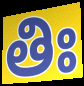
తిః